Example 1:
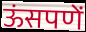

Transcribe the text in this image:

ऊंसपणें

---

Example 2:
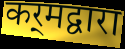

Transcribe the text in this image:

कर्मद्वारा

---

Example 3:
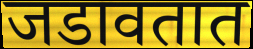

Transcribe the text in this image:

जडावतात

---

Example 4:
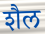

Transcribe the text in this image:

शैल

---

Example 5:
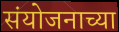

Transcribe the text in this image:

संयोजनाच्या